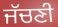
ਜੱਚਣੀ